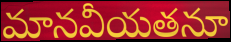
మానవీయతనూ